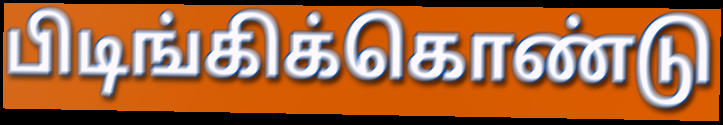
பிடிங்கிக்கொண்டு